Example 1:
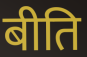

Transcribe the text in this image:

बीति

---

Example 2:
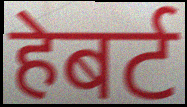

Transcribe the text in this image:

हेबर्ट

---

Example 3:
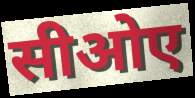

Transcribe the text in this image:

सीओए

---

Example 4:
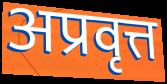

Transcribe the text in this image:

अप्रवृत्त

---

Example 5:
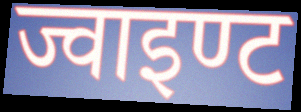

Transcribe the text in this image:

ज्वाइण्ट